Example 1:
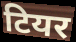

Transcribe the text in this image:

टियर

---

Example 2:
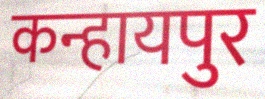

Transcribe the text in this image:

कन्हायपुर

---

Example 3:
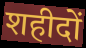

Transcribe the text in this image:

शहीदों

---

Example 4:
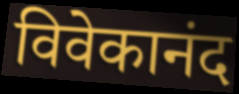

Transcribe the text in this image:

विवेकानंद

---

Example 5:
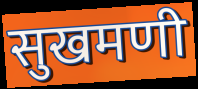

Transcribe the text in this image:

सुखमणी